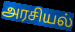
அரசியல்